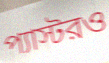
প্যাস্টরও